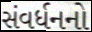
સંવર્ધનનો